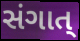
સંગાત્